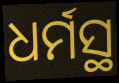
ଧର୍ମସ୍ଥ